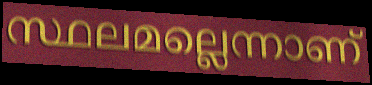
സ്ഥലമല്ലെന്നാണ്